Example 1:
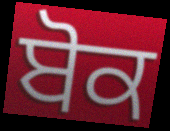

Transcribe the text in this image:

ਬੋਕ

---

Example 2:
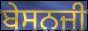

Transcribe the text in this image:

ਬੇਸਨਜੀ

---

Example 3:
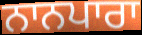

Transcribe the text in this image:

ਨਾਨਪਾਰਾ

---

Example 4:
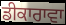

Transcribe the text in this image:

ਡੀਕਾਰਾਵਾ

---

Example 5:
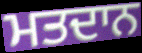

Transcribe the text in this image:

ਮਤਦਾਨ